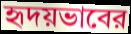
হৃদয়ভাবের